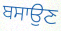
ਬਸਾਉਣ